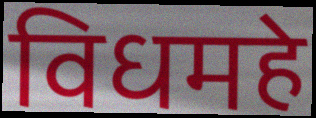
विधमहे